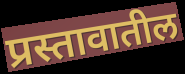
प्रस्तावातील